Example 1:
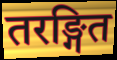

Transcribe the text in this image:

तरङ्गित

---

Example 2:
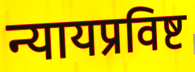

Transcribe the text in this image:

न्यायप्रविष्ट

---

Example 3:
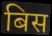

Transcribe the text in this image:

बिस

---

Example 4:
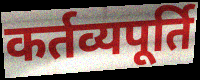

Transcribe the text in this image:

कर्तव्यपूर्ति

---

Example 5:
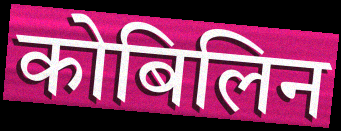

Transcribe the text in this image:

कोबिलिन